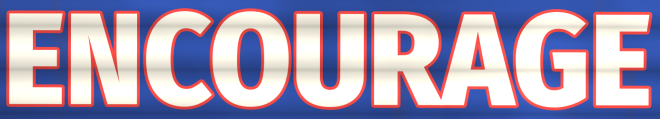
ENCOURAGE